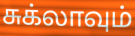
சுக்லாவும்